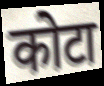
कोटा